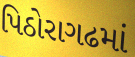
પિઠોરાગઢમાં